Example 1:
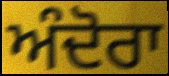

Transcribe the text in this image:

ਅੰਦੋਰਾ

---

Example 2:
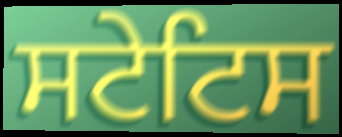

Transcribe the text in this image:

ਸਟੇਟਿਸ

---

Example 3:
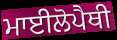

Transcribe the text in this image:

ਮਾਈਲੋਪੈਥੀ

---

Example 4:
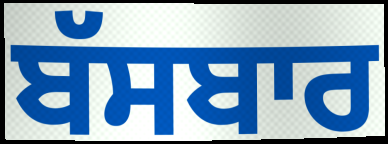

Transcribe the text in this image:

ਬੱਸਬਾਰ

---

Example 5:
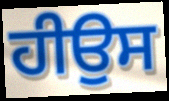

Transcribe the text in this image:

ਹੀਉਸ